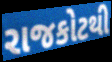
રાજકોટથી